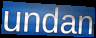
undan